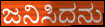
ಜನಿಸಿದನು